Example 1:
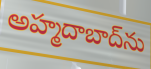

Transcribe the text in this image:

అహ్మదాబాద్‌ను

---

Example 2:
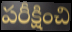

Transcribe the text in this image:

పరీక్షించి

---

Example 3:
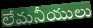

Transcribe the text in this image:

లేమనీయులు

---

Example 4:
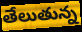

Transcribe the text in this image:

తేలుతున్న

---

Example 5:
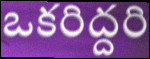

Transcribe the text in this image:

ఒకరిద్దరి